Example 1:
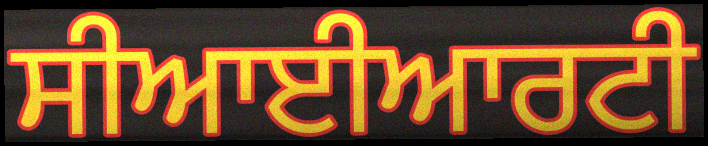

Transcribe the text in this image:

ਸੀਆਈਆਰਟੀ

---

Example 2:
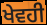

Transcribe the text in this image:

ਖੇਵਹੀ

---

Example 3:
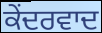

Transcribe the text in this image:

ਕੇਂਦਰਵਾਦ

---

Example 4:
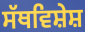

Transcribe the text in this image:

ਸੱਥਵਿਸ਼ੇਸ਼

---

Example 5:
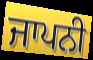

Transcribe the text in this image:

ਜਾਪਨੀ